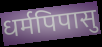
धर्मपिपासु